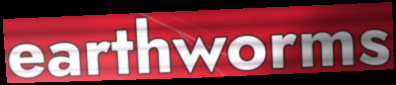
earthworms